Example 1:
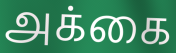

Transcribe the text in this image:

அக்கை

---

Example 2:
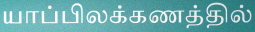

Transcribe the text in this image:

யாப்பிலக்கணத்தில்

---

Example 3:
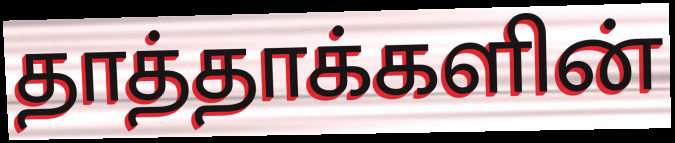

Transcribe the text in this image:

தாத்தாக்களின்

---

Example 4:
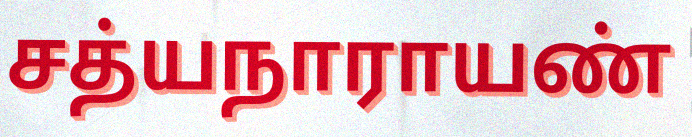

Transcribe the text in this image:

சத்யநாராயண்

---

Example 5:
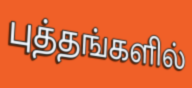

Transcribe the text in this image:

புத்தங்களில்